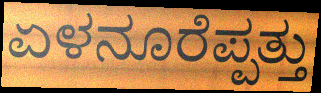
ಏಳನೂರೆಪ್ಪತ್ತು